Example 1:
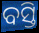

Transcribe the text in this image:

ବସ୍ତି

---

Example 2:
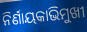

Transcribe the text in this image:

ନିର୍ଣାୟକାଭିମୁଖୀ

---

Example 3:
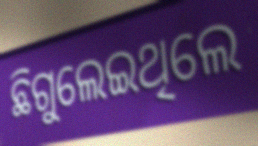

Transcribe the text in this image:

ଛିଗୁଲେଇଥିଲେ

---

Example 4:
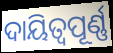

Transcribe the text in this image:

ଦାୟିତ୍ୱପୂର୍ଣ୍ଣ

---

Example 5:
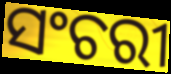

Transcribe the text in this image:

ସଂଚରୀ